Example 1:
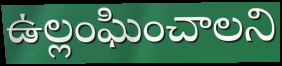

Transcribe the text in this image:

ఉల్లంఘించాలని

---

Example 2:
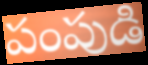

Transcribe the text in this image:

పంపుడి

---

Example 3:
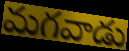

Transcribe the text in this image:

మగవాడు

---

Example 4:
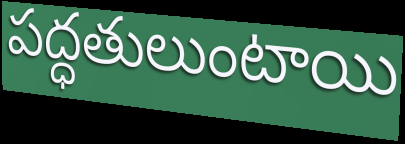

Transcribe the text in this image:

పద్ధతులుంటాయి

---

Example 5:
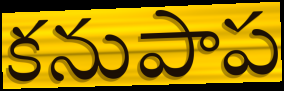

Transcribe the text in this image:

కనుపాప